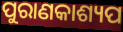
ପୁରାଣକାଶ୍ୟପ